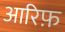
आरिफ़